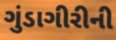
ગુંડાગીરીની